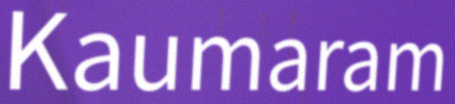
Kaumaram